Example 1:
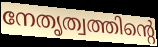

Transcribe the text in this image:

നേതൃത്വത്തിന്റെ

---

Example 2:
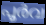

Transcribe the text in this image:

പൂർവ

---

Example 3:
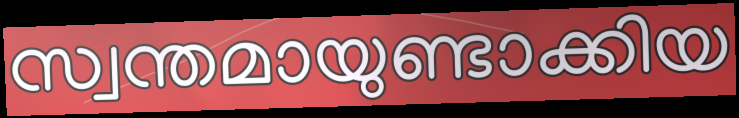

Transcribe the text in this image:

സ്വന്തമായുണ്ടാക്കിയ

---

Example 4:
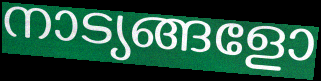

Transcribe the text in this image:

നാട്യങ്ങളോ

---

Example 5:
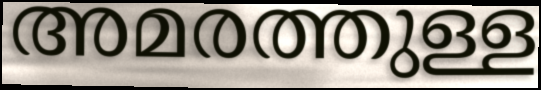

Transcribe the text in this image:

അമരത്തുള്ള